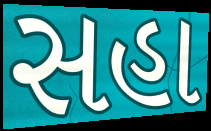
સહા